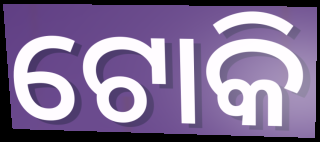
ଟୋକି